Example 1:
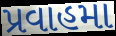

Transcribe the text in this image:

પ્રવાહમા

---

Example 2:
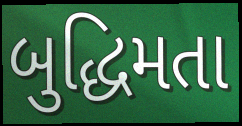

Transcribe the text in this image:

બુદ્ધિમતા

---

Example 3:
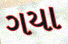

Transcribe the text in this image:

ગયા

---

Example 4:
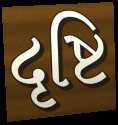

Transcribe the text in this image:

દૃષ્ટિ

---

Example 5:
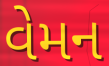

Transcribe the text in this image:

વેમન